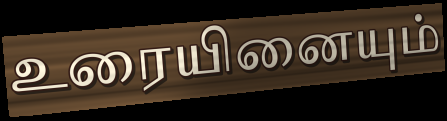
உரையினையும்